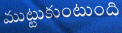
ముట్టుకుంటుంది